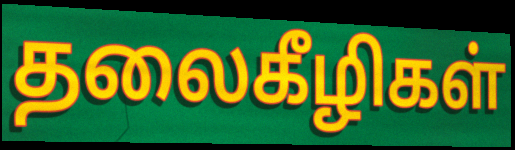
தலைகீழிகள்